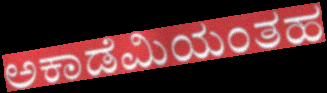
ಅಕಾಡೆಮಿಯಂತಹ